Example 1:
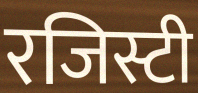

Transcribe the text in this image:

रजिस्टी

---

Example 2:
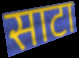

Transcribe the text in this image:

साटा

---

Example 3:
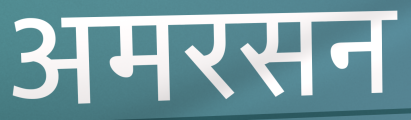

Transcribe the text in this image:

अमरसन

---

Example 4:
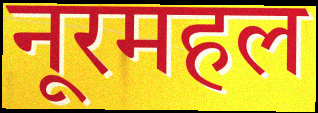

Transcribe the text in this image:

नूरमहल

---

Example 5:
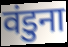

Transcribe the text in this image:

वंडुना